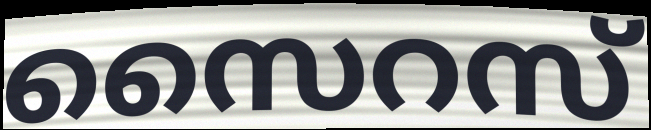
സൈറസ്